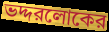
ভদ্দরলোকের